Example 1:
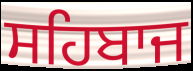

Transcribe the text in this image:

ਸਹਿਬਾਜ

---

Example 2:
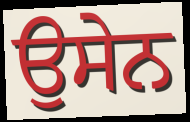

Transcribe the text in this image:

ਉਸੇਨ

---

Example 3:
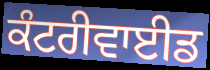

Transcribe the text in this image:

ਕੰਟਰੀਵਾਈਡ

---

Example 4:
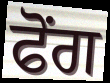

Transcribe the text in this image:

ਫੋਂਗ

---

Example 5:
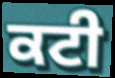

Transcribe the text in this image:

ਕਟੀ